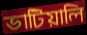
ভাটিয়ালি